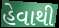
હેવાથી